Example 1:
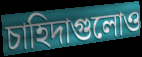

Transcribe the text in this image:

চাহিদাগুলোও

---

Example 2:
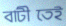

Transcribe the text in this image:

বাটীতেই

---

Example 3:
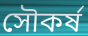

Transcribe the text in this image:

সৌকর্ষ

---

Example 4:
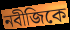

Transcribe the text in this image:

নবীজিকে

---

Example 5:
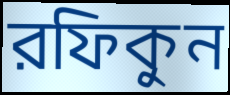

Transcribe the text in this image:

রফিকুন